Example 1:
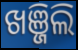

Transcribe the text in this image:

ଖଞ୍ଜିଲି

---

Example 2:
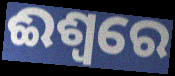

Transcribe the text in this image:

ଈଶ୍ଵରେ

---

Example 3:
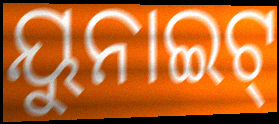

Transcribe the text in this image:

ୟୁନାଇଟ୍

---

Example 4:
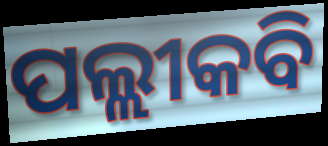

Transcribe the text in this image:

ପଲ୍ଲୀକବି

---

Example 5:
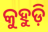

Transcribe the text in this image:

କୁହୁଡ଼ି